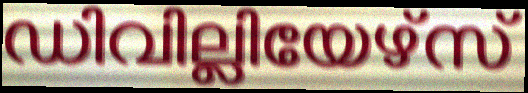
ഡിവില്ലിയേഴ്സ്